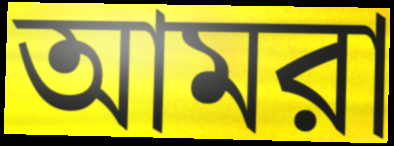
আমরা